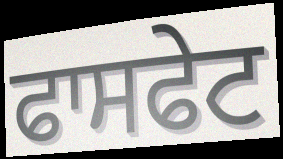
ਫਾਸਫੇਟ